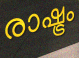
രാഷ്ട്രം